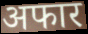
अफार